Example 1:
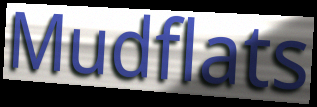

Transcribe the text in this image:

Mudflats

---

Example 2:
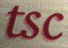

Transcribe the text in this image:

tsc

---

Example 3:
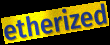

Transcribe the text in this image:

etherized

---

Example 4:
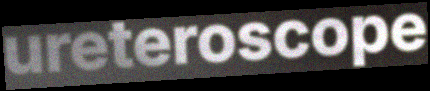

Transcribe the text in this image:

ureteroscope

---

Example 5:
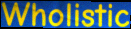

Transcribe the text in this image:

Wholistic